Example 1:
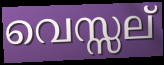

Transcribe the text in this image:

വെസ്സല്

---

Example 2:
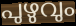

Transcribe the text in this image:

പുഴുവും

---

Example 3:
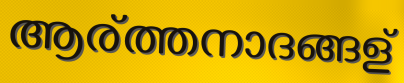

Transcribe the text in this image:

ആര്ത്തനാദങ്ങള്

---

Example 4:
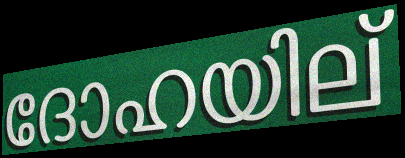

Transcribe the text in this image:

ദോഹയില്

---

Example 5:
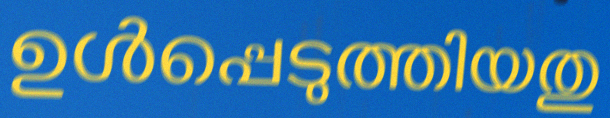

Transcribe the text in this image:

ഉൾപ്പെടുത്തിയതു